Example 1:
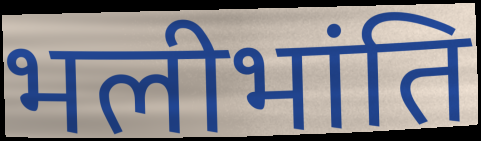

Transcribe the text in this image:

भलीभांति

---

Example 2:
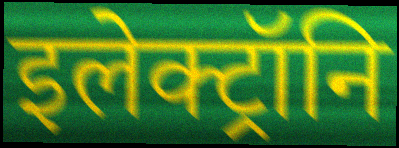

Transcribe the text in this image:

इलेक्ट्रॉनि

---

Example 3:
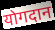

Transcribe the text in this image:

योगदान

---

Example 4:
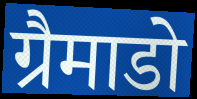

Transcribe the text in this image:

ग्रैमाडो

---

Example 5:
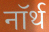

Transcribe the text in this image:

नॉर्थ